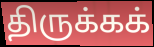
திருக்கக்